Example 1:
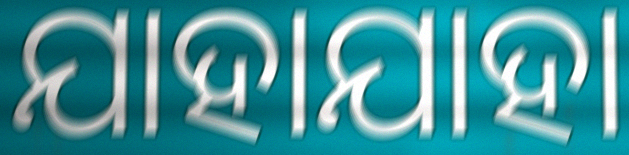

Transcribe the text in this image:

ଯାହାଯାହା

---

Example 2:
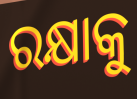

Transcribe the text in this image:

ରକ୍ଷାକୁ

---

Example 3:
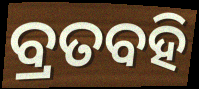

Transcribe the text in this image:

ବ୍ରତବହି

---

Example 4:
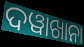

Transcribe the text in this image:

ଦୱାଖାନା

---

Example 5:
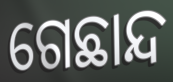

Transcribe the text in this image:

ଗେଛାନ୍ଦ